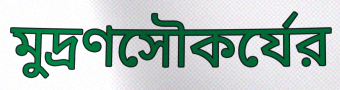
মুদ্রণসৌকর্যের